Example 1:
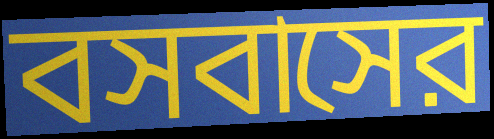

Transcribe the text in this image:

বসবাসের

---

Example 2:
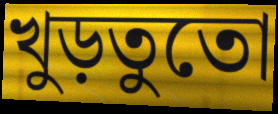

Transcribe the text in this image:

খুড়তুতো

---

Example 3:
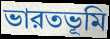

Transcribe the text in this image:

ভারতভূমি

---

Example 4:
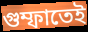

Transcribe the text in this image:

গুম্ফাতেই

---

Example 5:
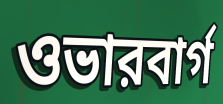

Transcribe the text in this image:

ওভারবার্গ